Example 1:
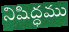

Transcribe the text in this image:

నిషిద్ధము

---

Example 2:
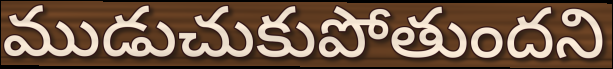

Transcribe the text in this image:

ముడుచుకుపోతుందని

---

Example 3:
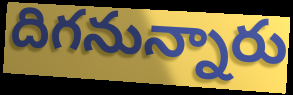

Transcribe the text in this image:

దిగనున్నారు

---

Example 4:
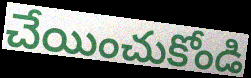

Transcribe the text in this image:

చేయించుకోండి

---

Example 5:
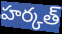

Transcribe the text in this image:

హర్కత్